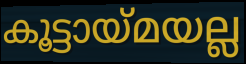
കൂട്ടായ്മയല്ല